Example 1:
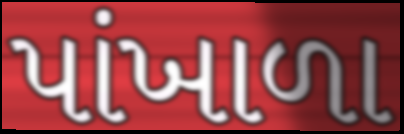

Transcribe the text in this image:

પાંખાળા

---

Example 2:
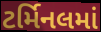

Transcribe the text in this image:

ટર્મિનલમાં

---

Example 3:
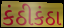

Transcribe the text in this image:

કંઠીકંઠા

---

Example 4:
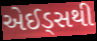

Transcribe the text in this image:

એઈડ્સથી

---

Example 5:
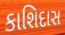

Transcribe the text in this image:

કાશિદાસ